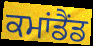
ਕਮਾਂਡੈਂਡ